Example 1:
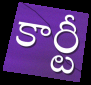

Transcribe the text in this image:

కార్టీ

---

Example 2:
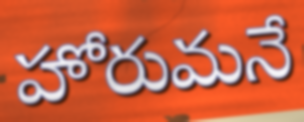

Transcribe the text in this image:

హోరుమనే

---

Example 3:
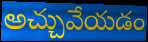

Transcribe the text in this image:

అచ్చువేయడం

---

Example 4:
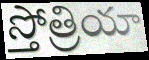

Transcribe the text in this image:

స్తోత్రియా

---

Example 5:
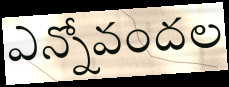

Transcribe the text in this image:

ఎన్నోవందల